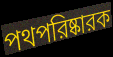
পথপরিষ্কারক